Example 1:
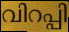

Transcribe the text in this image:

വിറപ്പി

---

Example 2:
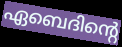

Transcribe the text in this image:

ഏബെദിന്റെ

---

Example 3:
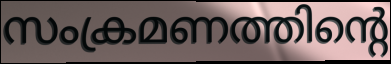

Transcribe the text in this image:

സംക്രമണത്തിന്റെ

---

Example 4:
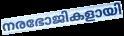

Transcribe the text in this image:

നരഭോജികളായി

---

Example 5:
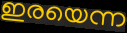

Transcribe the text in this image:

ഇരയെന്ന